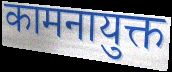
कामनायुक्त